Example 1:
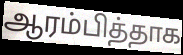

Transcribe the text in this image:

ஆரம்பித்தாக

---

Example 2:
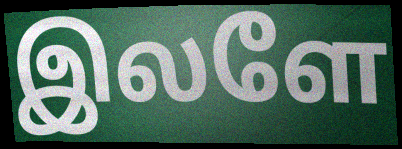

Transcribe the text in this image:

இலளே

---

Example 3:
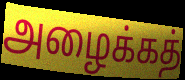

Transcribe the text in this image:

அழைக்கத்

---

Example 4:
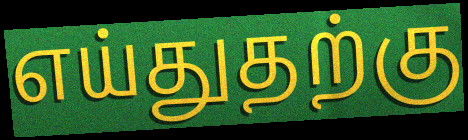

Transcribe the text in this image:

எய்துதற்கு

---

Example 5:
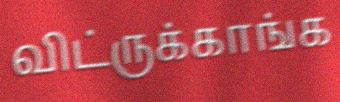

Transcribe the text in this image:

விட்ருக்காங்க